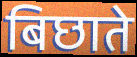
बिछाते